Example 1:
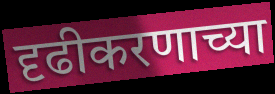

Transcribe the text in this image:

दृढीकरणाच्या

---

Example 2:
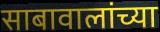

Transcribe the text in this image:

साबावालांच्या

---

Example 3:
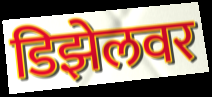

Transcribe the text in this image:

डिझेलवर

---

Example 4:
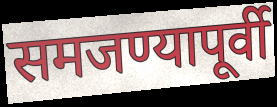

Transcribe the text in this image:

समजण्यापूर्वी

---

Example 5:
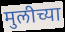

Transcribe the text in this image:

मुलीच्‍या